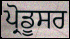
ਪ੍ਰੋਡੂਸਰ